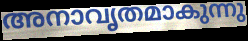
അനാവൃതമാകുന്നു